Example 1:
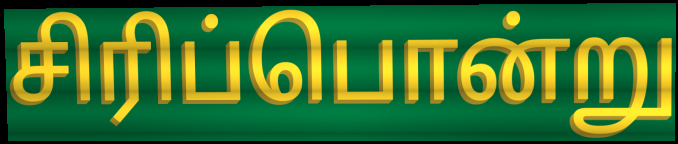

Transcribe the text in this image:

சிரிப்பொன்று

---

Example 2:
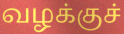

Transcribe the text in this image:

வழக்குச்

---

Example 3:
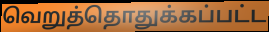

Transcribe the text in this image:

வெறுத்தொதுக்கப்பட்ட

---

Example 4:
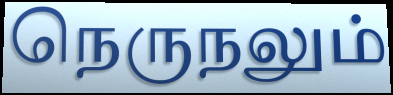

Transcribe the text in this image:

நெருநலும்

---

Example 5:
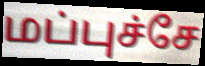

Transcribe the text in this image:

மப்புச்சே